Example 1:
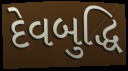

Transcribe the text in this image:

દેવબુદ્ધિ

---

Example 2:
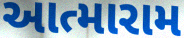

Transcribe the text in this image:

આત્મારામ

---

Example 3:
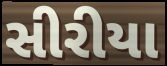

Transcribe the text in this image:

સીરીયા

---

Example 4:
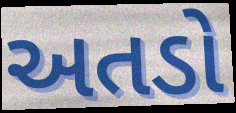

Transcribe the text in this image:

અતડો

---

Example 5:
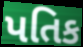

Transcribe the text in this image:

પતિક